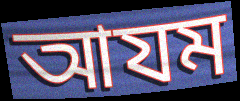
আযম